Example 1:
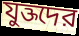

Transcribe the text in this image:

যুক্তদের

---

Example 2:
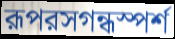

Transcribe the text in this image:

রূপরসগন্ধস্পর্শ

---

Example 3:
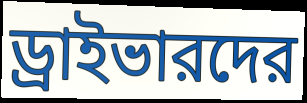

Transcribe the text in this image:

ড্রাইভারদের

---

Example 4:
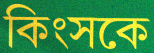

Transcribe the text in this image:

কিংসকে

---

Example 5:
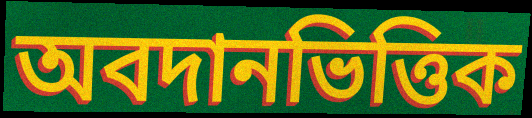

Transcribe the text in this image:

অবদানভিত্তিক